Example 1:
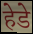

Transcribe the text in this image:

हेडे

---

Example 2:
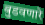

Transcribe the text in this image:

बुडवणारे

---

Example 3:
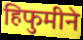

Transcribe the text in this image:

हिफुमीने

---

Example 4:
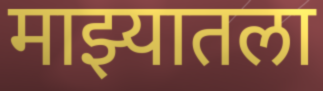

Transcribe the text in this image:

माझ्यातला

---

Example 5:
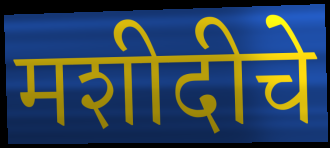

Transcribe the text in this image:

मशीदीचे